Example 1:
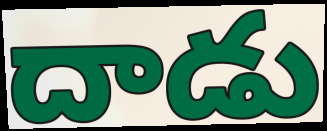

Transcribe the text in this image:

దాడు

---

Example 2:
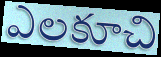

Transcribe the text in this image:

ఎలకూచి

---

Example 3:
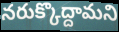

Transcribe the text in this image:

నరుక్కొద్దామని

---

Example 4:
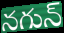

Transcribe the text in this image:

నగున్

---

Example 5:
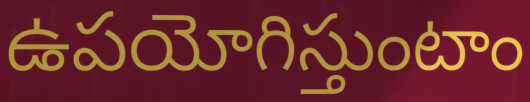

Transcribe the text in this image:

ఉపయోగిస్తుంటాం